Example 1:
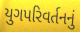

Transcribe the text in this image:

યુગપરિવર્તનનું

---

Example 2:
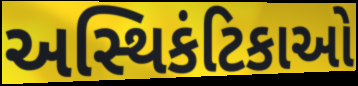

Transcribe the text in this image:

અસ્થિકંટિકાઓ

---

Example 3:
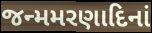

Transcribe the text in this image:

જન્મમરણાદિનાં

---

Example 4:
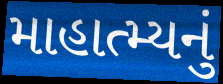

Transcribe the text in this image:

માહાત્મ્યનું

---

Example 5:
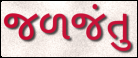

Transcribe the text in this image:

જળજંતુ